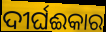
ଦୀର୍ଘଈକାର